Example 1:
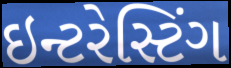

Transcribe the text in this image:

ઇન્ટરેસ્ટિંગ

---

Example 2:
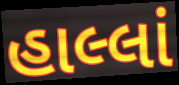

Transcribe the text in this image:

હાલ્લાં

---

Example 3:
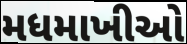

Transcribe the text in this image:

મધમાખીઓ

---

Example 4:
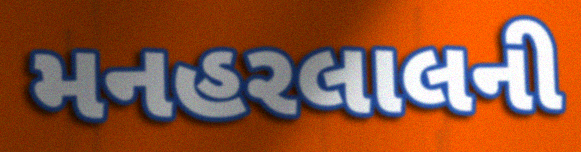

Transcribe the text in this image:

મનહરલાલની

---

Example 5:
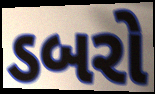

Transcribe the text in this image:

ડબરો